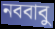
নববাবু